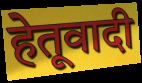
हेतूवादी